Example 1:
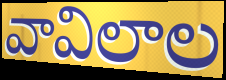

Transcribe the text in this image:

వావిలాల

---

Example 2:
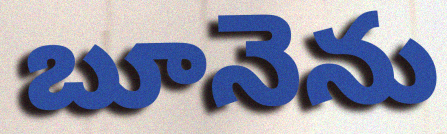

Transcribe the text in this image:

బూనెను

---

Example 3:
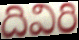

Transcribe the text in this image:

దివిరి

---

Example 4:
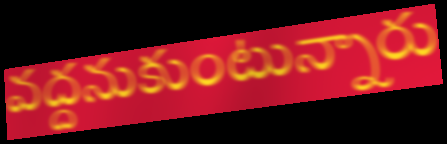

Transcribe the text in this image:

వద్దనుకుంటున్నారు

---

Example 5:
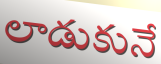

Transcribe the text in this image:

లాడుకునే